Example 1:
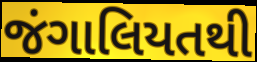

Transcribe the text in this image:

જંગાલિયતથી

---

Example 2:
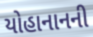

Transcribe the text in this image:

યોહાનાનની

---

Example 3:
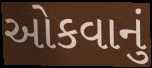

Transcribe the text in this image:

ઓકવાનું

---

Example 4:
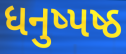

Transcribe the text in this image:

ધનુષ્પષ્ઠ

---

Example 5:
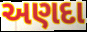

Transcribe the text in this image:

અણદા